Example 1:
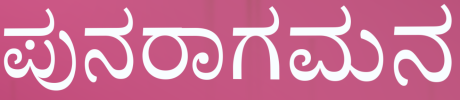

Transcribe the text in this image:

ಪುನರಾಗಮನ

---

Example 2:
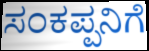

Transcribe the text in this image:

ಸಂಕಪ್ಪನಿಗೆ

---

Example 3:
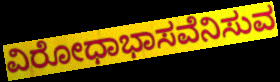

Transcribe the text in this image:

ವಿರೋಧಾಭಾಸವೆನಿಸುವ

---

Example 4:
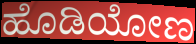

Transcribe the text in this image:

ಹೊಡಿಯೋಣ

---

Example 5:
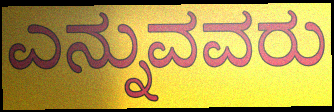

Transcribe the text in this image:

ಎನ್ನುವವರು